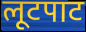
लूटपाट